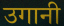
उगानी